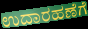
ಉದಾರಹಣೆಗೆ